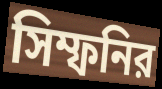
সিম্ফনির